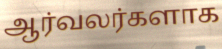
ஆர்வலர்களாக